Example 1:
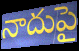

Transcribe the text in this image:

నాదుపై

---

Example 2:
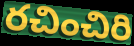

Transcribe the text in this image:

రచించిరి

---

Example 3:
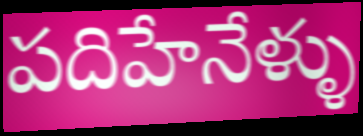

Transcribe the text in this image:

పదిహేనేళ్ళు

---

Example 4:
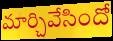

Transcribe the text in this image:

మార్చివేసిందో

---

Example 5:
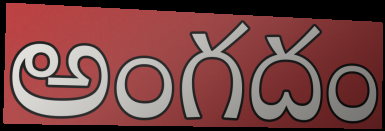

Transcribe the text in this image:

అంగదం